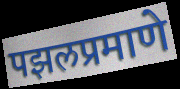
पझलप्रमाणे